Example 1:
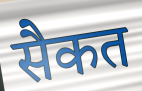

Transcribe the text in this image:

सैकत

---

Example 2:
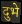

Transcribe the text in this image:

दुभे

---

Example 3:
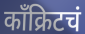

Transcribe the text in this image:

काँक्रिटचं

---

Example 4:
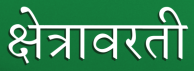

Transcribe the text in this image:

क्षेत्रावरती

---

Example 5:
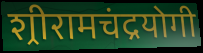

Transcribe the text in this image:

श्रीरामचंद्रयोगी